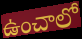
ఉంచాలో